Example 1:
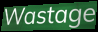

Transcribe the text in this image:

Wastage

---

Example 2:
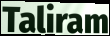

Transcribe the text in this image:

Taliram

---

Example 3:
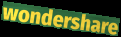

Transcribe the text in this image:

wondershare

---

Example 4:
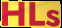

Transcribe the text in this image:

HLs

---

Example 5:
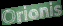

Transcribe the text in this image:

Orionis